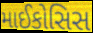
માઈકોસિસ